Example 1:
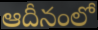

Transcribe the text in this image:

ఆదీనంలో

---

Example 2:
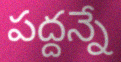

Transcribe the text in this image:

పద్దన్నే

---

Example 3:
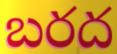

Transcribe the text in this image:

బరద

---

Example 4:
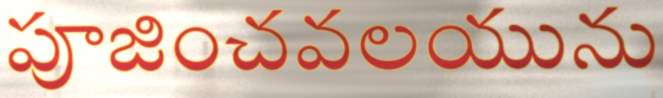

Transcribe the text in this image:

పూజించవలయును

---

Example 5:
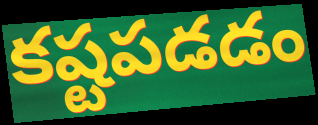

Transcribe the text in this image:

కష్టపడడం